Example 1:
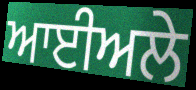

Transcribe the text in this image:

ਆਈਅਲੇ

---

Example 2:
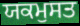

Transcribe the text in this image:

ਯਕਮੁਸਤ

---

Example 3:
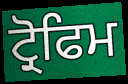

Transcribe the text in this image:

ਟ੍ਰੋਫਿਮ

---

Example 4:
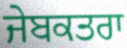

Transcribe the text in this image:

ਜੇਬਕਤਰਾ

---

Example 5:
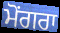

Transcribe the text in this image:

ਮੋਂਗਰਾ